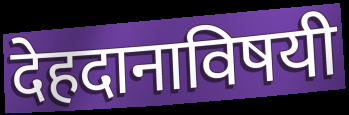
देहदानाविषयी